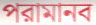
পরামানব